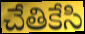
చేతికేసి